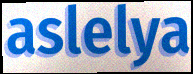
aslelya